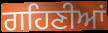
ਗਹਿਣੀਆਂ